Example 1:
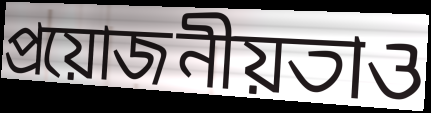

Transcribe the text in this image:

প্ৰয়োজনীয়তাও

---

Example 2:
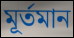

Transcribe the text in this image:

মূৰ্তমান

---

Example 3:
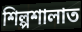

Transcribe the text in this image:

শিল্পশালাত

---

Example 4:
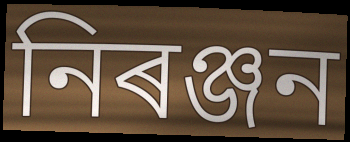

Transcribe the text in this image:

নিৰঞ্জন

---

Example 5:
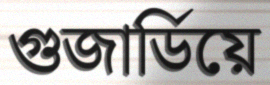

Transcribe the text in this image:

গুজাৰ্ডিয়ে